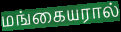
மங்கையரால்